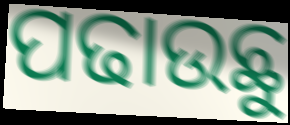
ପଢାଉଛୁ